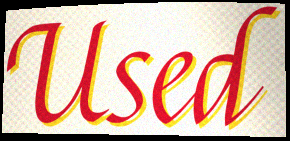
Used